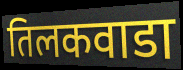
तिलकवाडा